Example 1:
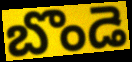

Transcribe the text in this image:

బొండె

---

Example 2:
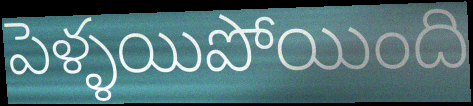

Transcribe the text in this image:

పెళ్ళయిపోయింది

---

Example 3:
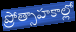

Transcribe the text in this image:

ప్రోత్సాహకాల్లో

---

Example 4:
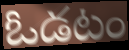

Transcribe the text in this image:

ఓడటం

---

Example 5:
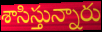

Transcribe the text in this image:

శాసిస్తున్నారు